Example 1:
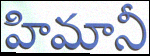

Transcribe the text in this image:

హిమానీ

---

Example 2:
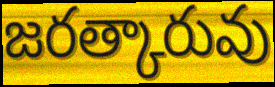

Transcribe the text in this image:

జరత్కారువు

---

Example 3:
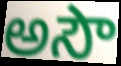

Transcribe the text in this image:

అసౌ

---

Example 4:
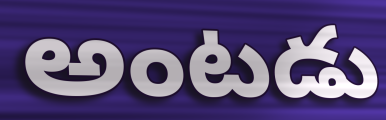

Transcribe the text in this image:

అంటడు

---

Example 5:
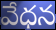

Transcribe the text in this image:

వేధన